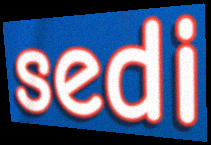
sedi